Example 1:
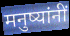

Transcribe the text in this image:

मनुष्यांनीं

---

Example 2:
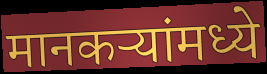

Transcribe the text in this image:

मानकऱ्यांमध्ये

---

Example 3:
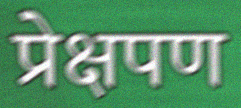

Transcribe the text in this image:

प्रेक्षपण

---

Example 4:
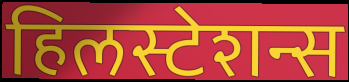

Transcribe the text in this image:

हिलस्टेशन्स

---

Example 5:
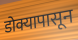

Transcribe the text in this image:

डोक्यापासून